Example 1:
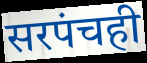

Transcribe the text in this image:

सरपंचही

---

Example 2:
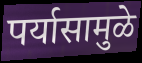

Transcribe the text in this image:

पर्यासामुळे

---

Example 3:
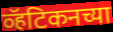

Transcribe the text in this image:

व्हॅटिकनच्या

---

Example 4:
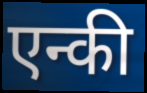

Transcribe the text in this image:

एन्की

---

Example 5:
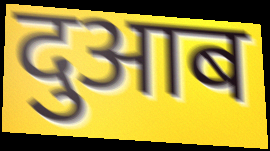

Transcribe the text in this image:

दुआब